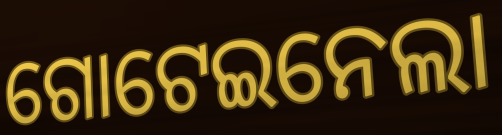
ଗୋଟେଇନେଲା